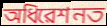
অধিৱেশনত